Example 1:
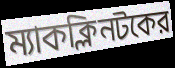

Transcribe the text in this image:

ম্যাকক্লিনটকের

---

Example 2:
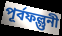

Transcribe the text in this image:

পূর্বফল্গুনী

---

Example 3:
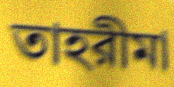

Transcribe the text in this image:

তাহরীমা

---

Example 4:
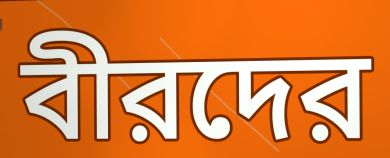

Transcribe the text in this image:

বীরদের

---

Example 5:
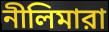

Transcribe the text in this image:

নীলিমারা